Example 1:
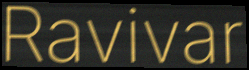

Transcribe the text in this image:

Ravivar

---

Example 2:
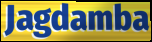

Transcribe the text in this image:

Jagdamba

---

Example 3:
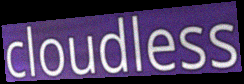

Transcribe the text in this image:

cloudless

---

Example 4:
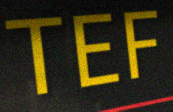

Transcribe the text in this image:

TEF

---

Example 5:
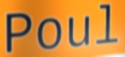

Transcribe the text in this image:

Poul